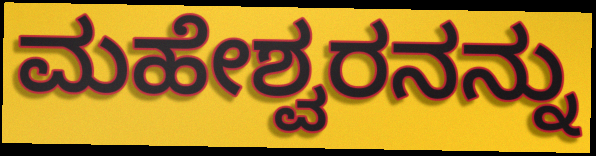
ಮಹೇಶ್ವರನನ್ನು